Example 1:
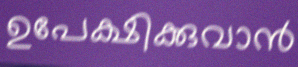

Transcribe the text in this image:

ഉപേക്ഷിക്കുവാൻ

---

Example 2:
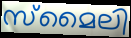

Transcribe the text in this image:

സ്മൈലി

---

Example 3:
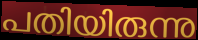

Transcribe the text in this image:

പതിയിരുന്നു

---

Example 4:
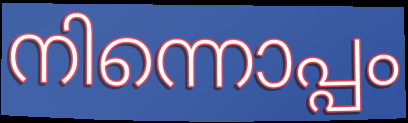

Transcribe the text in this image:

നിന്നൊപ്പം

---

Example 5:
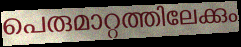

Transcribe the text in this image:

പെരുമാറ്റത്തിലേക്കും